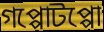
গপ্পোটপ্পো